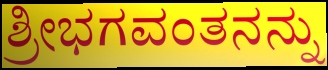
ಶ್ರೀಭಗವಂತನನ್ನು